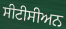
ਸੀਟੀਸੀਅਨ